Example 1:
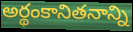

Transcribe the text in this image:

అర్థంకానితనాన్ని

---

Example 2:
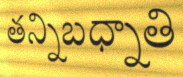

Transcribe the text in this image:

తన్నిబధ్నాతి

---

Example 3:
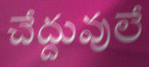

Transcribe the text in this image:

చేద్దువులే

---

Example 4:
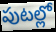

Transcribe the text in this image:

పుటల్లో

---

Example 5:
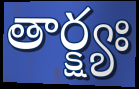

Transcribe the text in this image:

తార్క్ష్యః